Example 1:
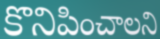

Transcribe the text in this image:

కొనిపించాలని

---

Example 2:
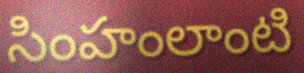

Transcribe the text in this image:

సింహంలాంటి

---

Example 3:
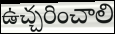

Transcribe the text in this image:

ఉచ్చరించాలి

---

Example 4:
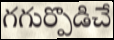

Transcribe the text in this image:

గగుర్పొడిచే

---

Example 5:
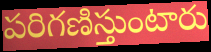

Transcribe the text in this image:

పరిగణిస్తుంటారు